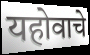
यहोवाचे